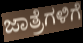
ಜಾತ್ರೆಗಳಿಗೆ